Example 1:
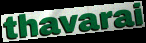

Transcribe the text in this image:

thavarai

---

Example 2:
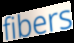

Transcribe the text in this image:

fibers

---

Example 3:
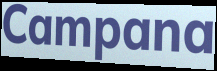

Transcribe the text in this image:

Campana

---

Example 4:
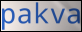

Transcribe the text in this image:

pakva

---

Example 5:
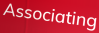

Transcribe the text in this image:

Associating